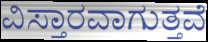
ವಿಸ್ತಾರವಾಗುತ್ತವೆ